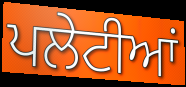
ਪਲੇਟੀਆਂ